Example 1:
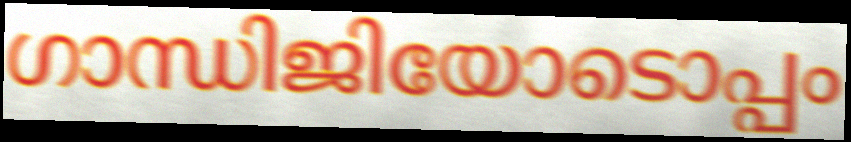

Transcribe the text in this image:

ഗാന്ധിജിയോടൊപ്പം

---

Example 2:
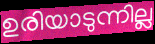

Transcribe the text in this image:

ഉരിയാടുന്നില്ല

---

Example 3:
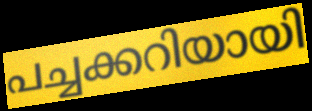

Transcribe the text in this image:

പച്ചക്കറിയായി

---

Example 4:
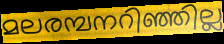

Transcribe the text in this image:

മലരമ്പനറിഞ്ഞില്ല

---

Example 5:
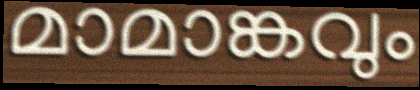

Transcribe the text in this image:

മാമാങ്കവും